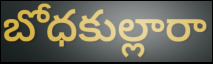
బోధకుల్లారా